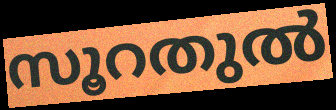
സൂറതുൽ